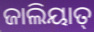
ଜାଲିୟାତ୍